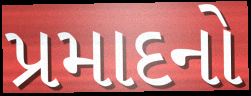
પ્રમાદનો